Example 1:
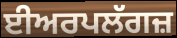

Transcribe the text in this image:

ਈਅਰਪਲੱਗਜ਼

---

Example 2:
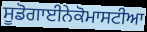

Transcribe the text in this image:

ਸੂਡੋਗਾਈਨੇਕੋਮਾਸਟੀਆ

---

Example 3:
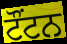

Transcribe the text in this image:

ਟੌਂਟਨ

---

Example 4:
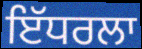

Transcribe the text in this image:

ਇੱਧਰਲਾ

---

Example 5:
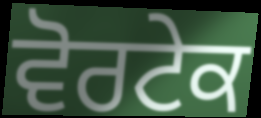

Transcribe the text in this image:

ਵੋਰਟੇਕ